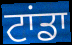
ਟਾਂਡਾ